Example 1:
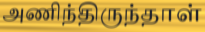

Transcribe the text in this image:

அணிந்திருந்தாள்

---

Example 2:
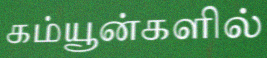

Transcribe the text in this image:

கம்யூன்களில்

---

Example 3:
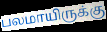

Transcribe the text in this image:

பலமாயிருக்கு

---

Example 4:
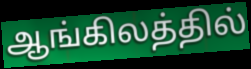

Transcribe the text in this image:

ஆங்கிலத்தில்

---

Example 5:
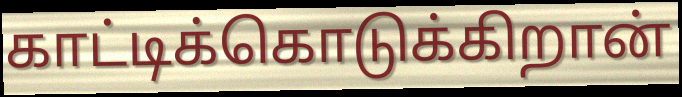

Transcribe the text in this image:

காட்டிக்கொடுக்கிறான்